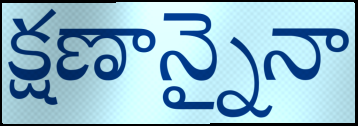
క్షణాన్నైనా